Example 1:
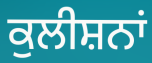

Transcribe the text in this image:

ਕੁਲੀਸ਼ਨਾਂ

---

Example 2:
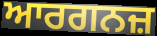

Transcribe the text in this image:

ਆਰਗਨਜ਼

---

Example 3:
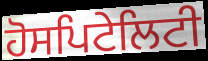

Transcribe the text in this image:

ਹੋਸਪਿਟੇਲਿਟੀ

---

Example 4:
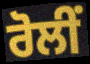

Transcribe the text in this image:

ਰੋਲੀਂ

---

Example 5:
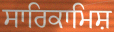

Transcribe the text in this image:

ਸਾਰਿਕਾਮਿਸ਼